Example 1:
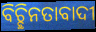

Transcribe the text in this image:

ବିଚ୍ଛିନତାବାଦୀ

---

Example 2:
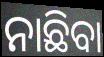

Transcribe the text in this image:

ନାଛିବା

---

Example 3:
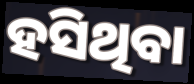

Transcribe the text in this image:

ହସିଥିବା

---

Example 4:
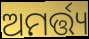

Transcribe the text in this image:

ଅମର୍ତ୍ତ୍ୟ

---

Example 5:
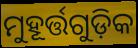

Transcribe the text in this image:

ମୁହୂର୍ତ୍ତଗୁଡ଼ିକ